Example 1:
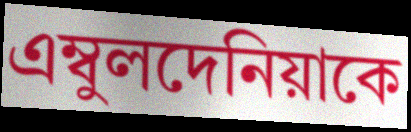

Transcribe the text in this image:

এম্বুলদেনিয়াকে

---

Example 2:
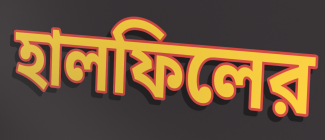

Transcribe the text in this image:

হালফিলের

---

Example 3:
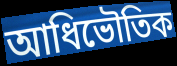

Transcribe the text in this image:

আধিভৌতিক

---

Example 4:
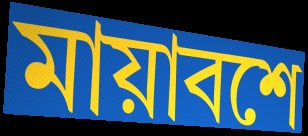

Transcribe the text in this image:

মায়াবশে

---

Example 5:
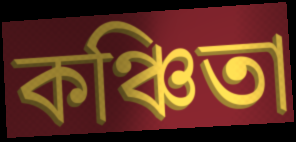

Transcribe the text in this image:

কঞ্চিতা